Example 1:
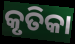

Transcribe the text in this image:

କୃତିକା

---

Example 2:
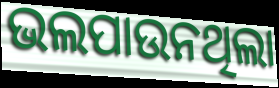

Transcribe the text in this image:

ଭଲପାଉନଥିଲା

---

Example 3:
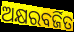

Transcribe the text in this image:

ଅକ୍ଷରବର୍ଜିତ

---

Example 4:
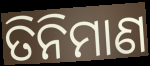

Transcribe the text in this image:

ତିନିମାଣ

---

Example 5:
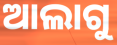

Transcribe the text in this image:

ଆଲାଗୁ